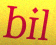
bil